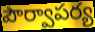
పౌర్వాపర్య